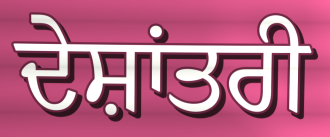
ਦੇਸ਼ਾਂਤਰੀ